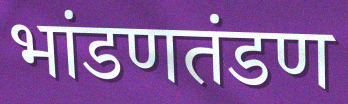
भांडणतंडण